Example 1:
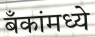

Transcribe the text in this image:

बँकांमध्ये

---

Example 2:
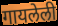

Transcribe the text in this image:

गायलेली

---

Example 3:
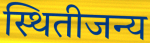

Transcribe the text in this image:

स्थितीजन्य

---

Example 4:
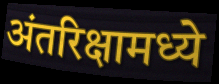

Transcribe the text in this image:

अंतरिक्षामध्ये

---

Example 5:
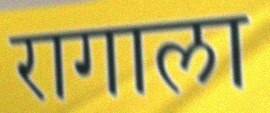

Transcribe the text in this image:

रागाला